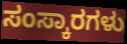
ಸಂಸ್ಕಾರಗಳು